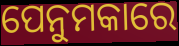
ପେନୁମକାରେ